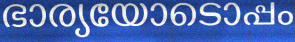
ഭാര്യയോടൊപ്പം